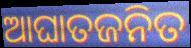
ଆଘାତଜନିତ